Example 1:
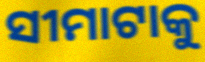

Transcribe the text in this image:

ସୀମାଟାକୁ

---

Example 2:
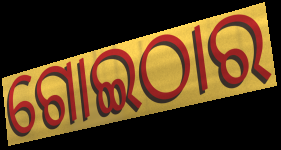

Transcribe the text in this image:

ଗୋଇଠାର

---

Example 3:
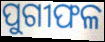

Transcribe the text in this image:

ପୁଗୀଫଳ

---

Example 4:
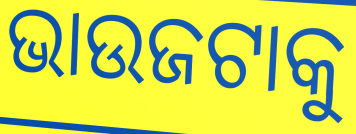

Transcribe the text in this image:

ଭାଉଜଟାକୁ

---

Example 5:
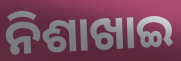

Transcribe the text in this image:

ନିଶାଖାଇ